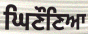
ਘਿਣੌਣਿਆ